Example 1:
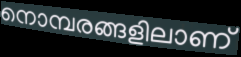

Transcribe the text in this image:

നൊമ്പരങ്ങളിലാണ്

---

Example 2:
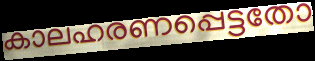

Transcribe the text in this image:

കാലഹരണപ്പെട്ടതോ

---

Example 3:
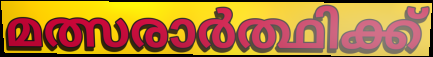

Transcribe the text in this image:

മത്സരാർത്ഥിക്ക്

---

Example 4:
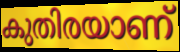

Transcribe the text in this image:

കുതിരയാണ്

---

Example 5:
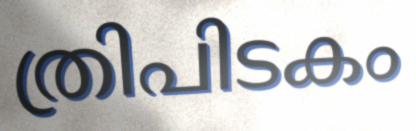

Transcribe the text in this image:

ത്രിപിടകം